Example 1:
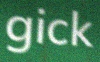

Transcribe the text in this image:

gick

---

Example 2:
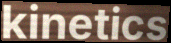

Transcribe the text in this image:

kinetics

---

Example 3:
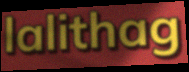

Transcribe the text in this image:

lalithag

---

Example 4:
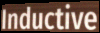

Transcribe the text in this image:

Inductive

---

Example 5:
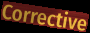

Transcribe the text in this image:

Corrective